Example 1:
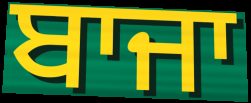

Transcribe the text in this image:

ਬਾਜਾ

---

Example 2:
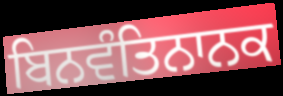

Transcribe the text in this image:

ਬਿਨਵੰਤਿਨਾਨਕ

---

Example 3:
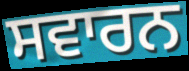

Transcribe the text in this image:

ਸਵਾਰਨ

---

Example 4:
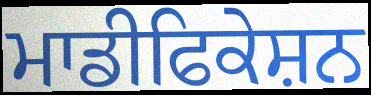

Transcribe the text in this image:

ਮਾਡੀਫਿਕੇਸ਼ਨ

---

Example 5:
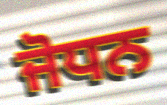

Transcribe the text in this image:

ਜੋਧਨ